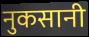
नुकसानी